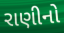
રાણીનો